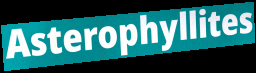
Asterophyllites